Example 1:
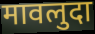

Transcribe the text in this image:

मावलुदा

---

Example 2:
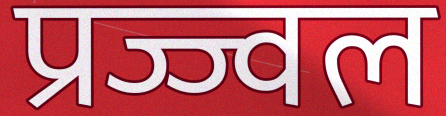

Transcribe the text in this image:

प्रज्ज्वल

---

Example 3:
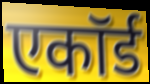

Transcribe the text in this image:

एकॉर्ड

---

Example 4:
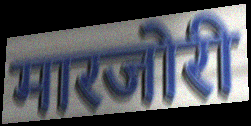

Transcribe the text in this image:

मारजोरी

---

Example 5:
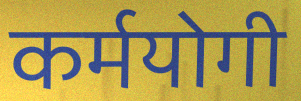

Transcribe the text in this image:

कर्मयोगी